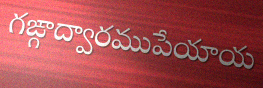
గఙ్గాద్వారముపేయాయ